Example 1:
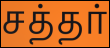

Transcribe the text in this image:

சத்தர்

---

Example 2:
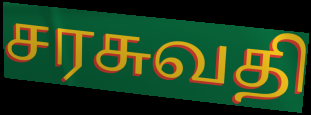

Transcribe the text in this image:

சரசுவதி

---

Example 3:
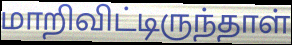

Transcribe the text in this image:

மாறிவிட்டிருந்தாள்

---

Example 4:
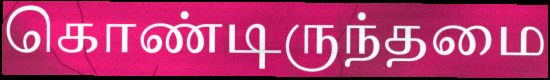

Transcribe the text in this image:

கொண்டிருந்தமை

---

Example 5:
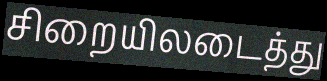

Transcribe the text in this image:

சிறையிலடைத்து